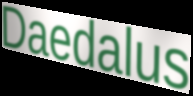
Daedalus